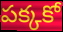
పక్కకో